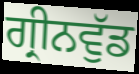
ਗ੍ਰੀਨਵੁੱਡ